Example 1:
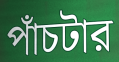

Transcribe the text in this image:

পাঁচটার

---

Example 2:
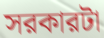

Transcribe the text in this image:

সরকারটা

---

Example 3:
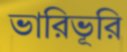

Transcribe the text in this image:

ভারিভূরি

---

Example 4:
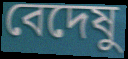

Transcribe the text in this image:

বেদেষু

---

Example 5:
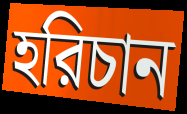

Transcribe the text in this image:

হরিচান